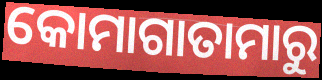
କୋମାଗାତାମାରୁ